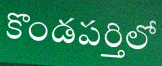
కొండపర్తిలో